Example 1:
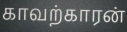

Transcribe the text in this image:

காவற்காரன்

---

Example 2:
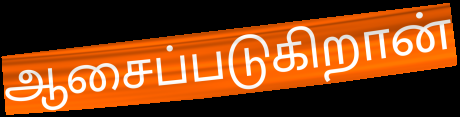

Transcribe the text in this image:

ஆசைப்படுகிறான்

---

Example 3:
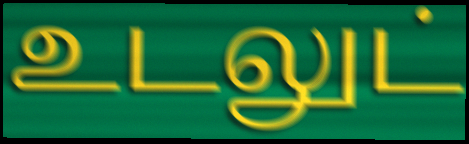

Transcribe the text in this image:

உடலுட்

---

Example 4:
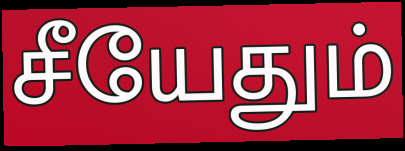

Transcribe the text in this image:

சீயேதும்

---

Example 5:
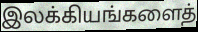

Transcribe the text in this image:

இலக்கியங்களைத்